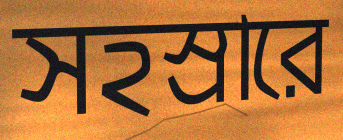
সহস্রারে